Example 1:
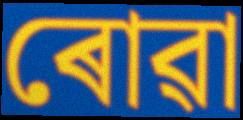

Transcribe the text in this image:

ৰোৱা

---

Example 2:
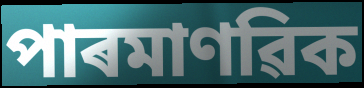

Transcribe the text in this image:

পাৰমাণৱিক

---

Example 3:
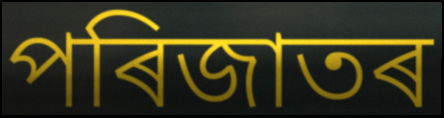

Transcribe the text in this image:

পৰিজাতৰ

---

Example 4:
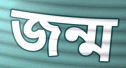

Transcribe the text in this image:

জন্ম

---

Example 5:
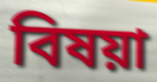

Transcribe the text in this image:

বিষয়া